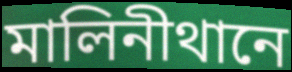
মালিনীথানে